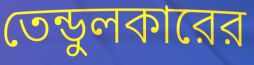
তেন্ডুলকারের